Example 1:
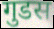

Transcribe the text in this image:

गुडस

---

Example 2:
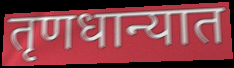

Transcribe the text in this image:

तृणधान्यात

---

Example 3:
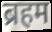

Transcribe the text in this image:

ब्रहम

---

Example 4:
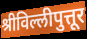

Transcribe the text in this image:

श्रीविल्लीपुत्तूर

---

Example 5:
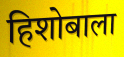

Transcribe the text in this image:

हिशोबाला